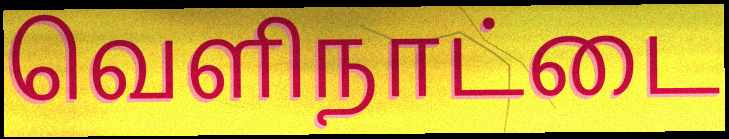
வெளிநாட்டை